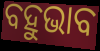
ବହୁଭାବ